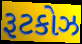
રૂટકોઝ